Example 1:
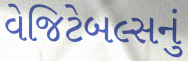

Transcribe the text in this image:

વેજિટેબલ્સનું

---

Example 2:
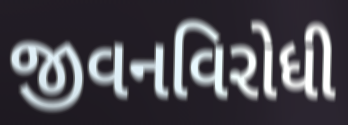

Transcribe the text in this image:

જીવનવિરોધી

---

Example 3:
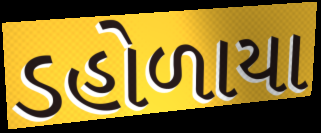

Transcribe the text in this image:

ડહોળાયા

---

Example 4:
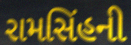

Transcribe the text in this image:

રામસિંહની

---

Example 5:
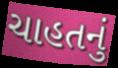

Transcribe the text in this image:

ચાહતનું